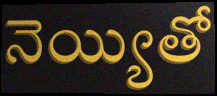
నెయ్యితో